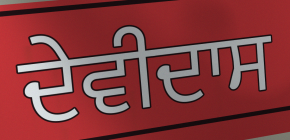
ਦੇਵੀਦਾਸ